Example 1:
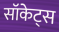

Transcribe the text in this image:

सॉकेट्स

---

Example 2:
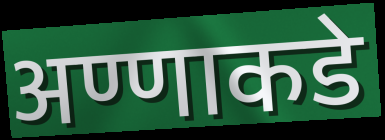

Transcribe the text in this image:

अण्णाकडे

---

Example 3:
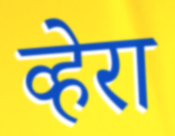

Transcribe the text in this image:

व्हेरा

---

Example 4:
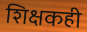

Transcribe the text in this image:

शिक्षकही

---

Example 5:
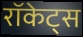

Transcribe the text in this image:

रॉकेट्स